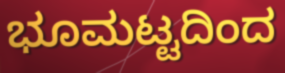
ಭೂಮಟ್ಟದಿಂದ